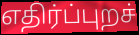
எதிர்ப்புறச்